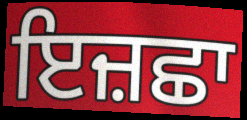
ਇਜ਼ਛਾ